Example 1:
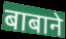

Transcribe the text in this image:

बाबाने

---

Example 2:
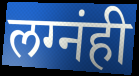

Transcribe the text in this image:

लग्नंही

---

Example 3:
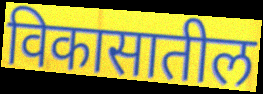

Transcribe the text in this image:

विकासातील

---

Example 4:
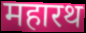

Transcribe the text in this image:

महारथ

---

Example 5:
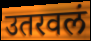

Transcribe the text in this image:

उतरवलं